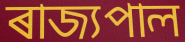
ৰাজ্যপাল